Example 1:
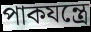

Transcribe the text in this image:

পাকযন্ত্রে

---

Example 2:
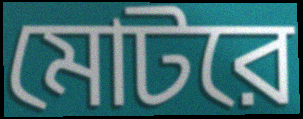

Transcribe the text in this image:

মোটরে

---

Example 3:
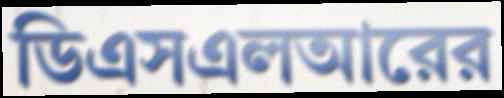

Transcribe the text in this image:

ডিএসএলআরের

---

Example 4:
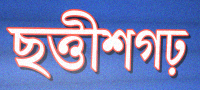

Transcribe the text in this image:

ছত্তীশগঢ়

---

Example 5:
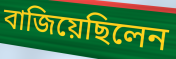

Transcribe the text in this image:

বাজিয়েছিলেন